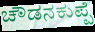
ಚೌಡನಕುಪ್ಪೆ